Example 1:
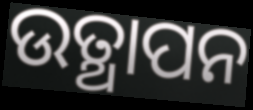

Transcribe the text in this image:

ଉତ୍ଥାପନ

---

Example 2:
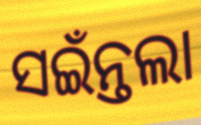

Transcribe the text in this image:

ସଇଁନ୍ତଲା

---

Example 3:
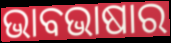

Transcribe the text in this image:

ଭାବଭାଷାର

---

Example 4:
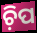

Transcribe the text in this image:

ଚ଼ିପ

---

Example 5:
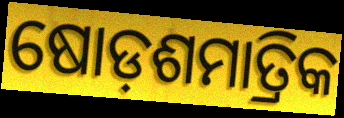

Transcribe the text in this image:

ଷୋଡ଼ଶମାତ୍ରିକ